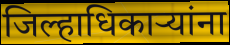
जिल्हाधिकाऱ्यांना